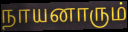
நாயனாரும்